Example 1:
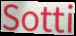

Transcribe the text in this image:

Sotti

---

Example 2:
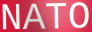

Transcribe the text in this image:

NATO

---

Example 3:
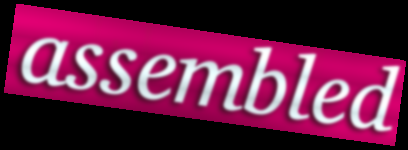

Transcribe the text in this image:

assembled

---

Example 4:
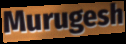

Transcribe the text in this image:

Murugesh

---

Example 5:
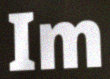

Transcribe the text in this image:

Im